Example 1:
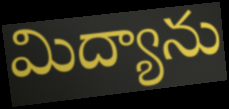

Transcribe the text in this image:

మిద్యాను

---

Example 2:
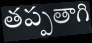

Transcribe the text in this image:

తప్పతాగి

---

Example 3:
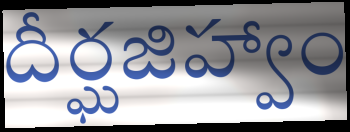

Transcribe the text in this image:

దీర్ఘజిహ్వాం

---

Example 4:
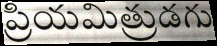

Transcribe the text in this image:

ప్రియమిత్రుడగు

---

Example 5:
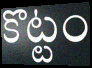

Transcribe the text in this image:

కొట్టం